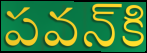
పవన్‌కి